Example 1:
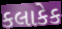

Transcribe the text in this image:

કલાકેક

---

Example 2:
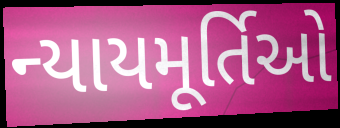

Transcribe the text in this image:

ન્યાયમૂર્તિઓ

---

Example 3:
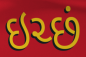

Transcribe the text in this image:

ઇચ્છં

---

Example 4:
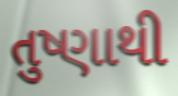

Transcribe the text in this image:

તુષ્ણાથી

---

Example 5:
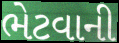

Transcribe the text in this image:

ભેટવાની